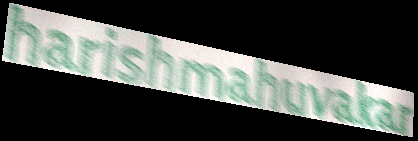
harishmahuvakar